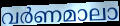
വർണമാലാ